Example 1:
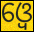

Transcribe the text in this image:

ଓ୍ବେ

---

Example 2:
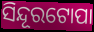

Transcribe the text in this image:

ସିନ୍ଦୂରଟୋପା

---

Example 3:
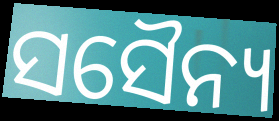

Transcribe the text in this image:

ସସୈନ୍ୟ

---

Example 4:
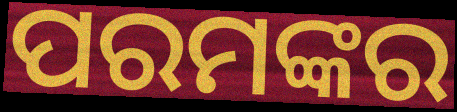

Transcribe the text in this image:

ପରମଙ୍କର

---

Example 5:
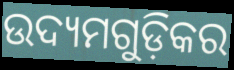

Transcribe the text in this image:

ଉଦ୍ୟମଗୁଡ଼ିକର